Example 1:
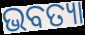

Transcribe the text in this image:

ଭବତ୍ୟା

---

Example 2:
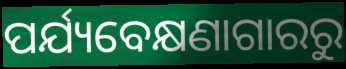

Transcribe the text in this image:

ପର୍ଯ୍ୟବେକ୍ଷଣାଗାରରୁ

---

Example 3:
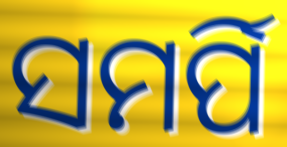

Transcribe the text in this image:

ସମର୍ପି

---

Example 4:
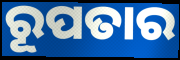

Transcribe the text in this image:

ରୂପତାର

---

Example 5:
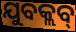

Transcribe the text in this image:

ଯୁବକ୍ଲବ୍